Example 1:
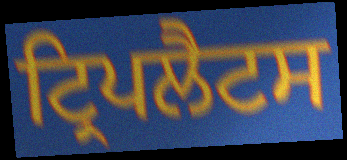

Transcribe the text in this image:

ਟ੍ਰਿਪਲੈਟਸ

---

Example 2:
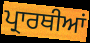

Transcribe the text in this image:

ਪ੍ਰਾਰਥੀਆਂ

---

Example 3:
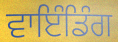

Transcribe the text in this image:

ਵਾਇੰਡਿੰਗ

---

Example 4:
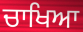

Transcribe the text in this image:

ਚਾਖਿਆ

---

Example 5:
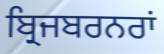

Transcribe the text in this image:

ਬ੍ਰਿਜਬਰਨਰਾਂ